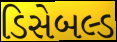
ડિસેબલ્ડ